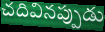
చదివినప్పుడు